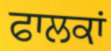
ਫਾਲਕਾਂ